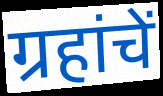
ग्रहांचें